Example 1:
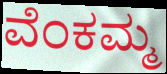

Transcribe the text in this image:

ವೆಂಕಮ್ಮ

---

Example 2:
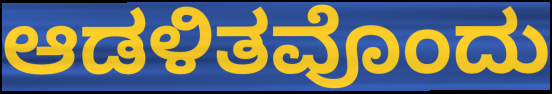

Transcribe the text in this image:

ಆಡಳಿತವೊಂದು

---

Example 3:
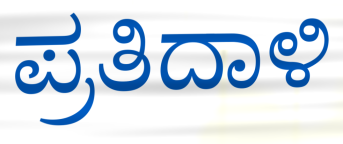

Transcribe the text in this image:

ಪ್ರತಿದಾಳಿ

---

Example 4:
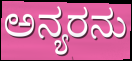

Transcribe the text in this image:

ಅನ್ಯರನು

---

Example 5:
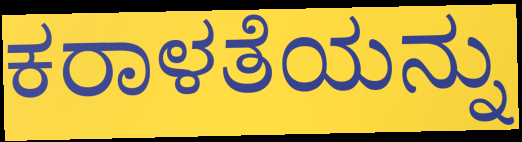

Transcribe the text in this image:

ಕರಾಳತೆಯನ್ನು